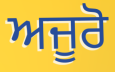
ਅਜੂਰੋ